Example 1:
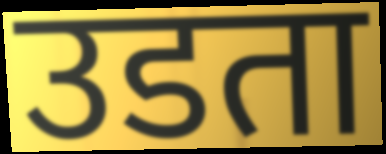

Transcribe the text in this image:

उडता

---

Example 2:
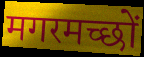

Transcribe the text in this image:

मगरमच्छों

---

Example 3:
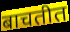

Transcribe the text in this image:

बाचतीत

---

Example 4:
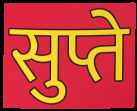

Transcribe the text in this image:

सुप्ते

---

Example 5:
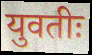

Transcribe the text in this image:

युवतीः